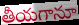
తీయగానూ